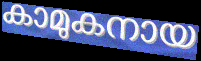
കാമുകനായ